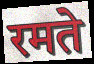
रमते